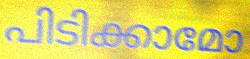
പിടിക്കാമോ